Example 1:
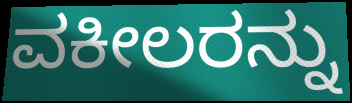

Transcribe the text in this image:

ವಕೀಲರನ್ನು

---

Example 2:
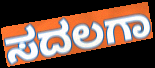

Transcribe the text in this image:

ಸದಲಗಾ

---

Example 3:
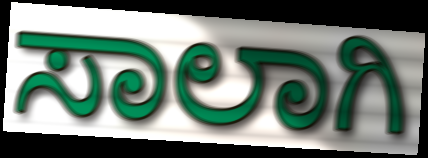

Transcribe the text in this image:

ಸಾಲಾಗಿ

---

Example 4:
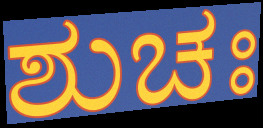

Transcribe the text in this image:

ಶುಚಃ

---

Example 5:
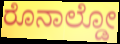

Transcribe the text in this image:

ರೊನಾಲ್ಡೋ